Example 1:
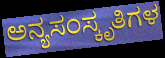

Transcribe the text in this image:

ಅನ್ಯಸಂಸ್ಕೃತಿಗಳ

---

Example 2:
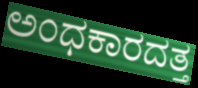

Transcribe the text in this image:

ಅಂಧಕಾರದತ್ತ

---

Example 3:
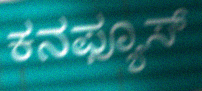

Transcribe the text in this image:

ಕನಫ್ಯೂಸ್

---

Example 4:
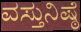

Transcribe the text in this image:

ವಸ್ತುನಿಷ್ಠೆ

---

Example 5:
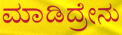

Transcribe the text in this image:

ಮಾಡಿದ್ರೇನು